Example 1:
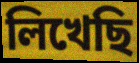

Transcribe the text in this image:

লিখেছি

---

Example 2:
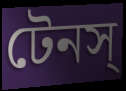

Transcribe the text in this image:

টেনস্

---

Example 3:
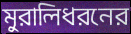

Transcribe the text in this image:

মুরালিধরনের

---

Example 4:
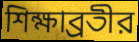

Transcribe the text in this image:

শিক্ষাব্রতীর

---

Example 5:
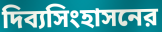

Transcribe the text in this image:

দিব্যসিংহাসনের